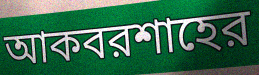
আকবরশাহের